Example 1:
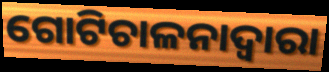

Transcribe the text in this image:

ଗୋଟିଚାଳନାଦ୍ୱାରା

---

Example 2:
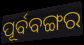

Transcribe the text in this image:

ପୂର୍ବବଙ୍ଗର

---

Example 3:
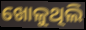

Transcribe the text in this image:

ଖୋଳୁଥିଲି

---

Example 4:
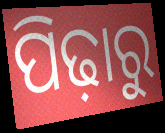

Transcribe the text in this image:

ପିଢ଼ାରୁ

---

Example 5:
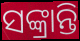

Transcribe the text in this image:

ସଙ୍କ୍ରାନ୍ତି